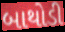
બાથોડી